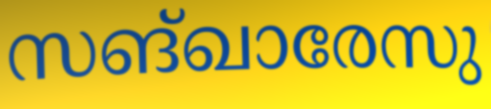
സങ്ഖാരേസു